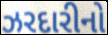
ઝરદારીનો